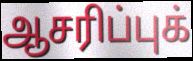
ஆசரிப்புக்